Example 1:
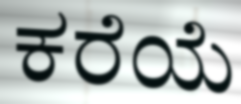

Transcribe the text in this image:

ಕರೆಯೆ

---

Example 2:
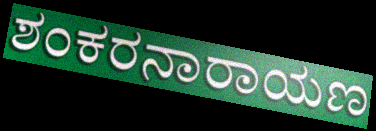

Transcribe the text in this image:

ಶಂಕರನಾರಾಯಣ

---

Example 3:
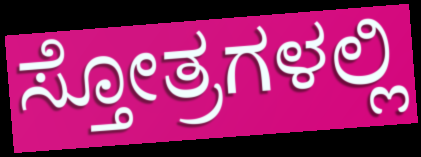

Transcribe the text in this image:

ಸ್ತೋತ್ರಗಳಲ್ಲಿ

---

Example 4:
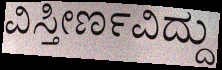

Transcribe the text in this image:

ವಿಸ್ತೀರ್ಣವಿದ್ದು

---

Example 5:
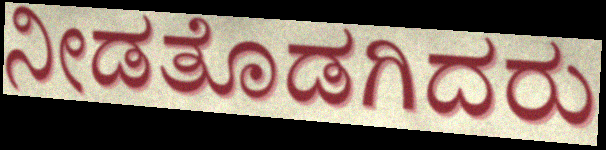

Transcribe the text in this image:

ನೀಡತೊಡಗಿದರು